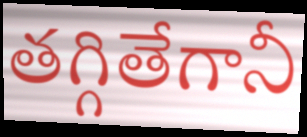
తగ్గితేగానీ